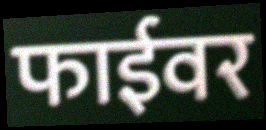
फाईवर